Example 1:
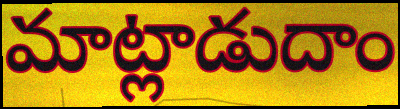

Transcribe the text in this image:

మాట్లాడుదాం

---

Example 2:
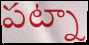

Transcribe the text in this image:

పట్నా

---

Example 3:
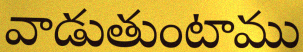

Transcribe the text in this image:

వాడుతుంటాము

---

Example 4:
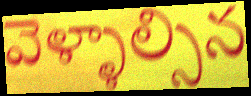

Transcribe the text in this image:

వెళ్ళాల్సిన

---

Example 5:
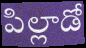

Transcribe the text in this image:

పిల్లాడో